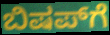
ಬಿಷಪ್‌ಗೆ